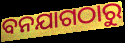
ବନଯାଗଠାରୁ